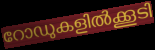
റോഡുകളിൽക്കൂടി